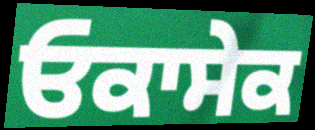
ਓਕਾਸੇਕ